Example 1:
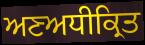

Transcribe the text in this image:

ਅਣਅਧੀਕ੍ਰਿਤ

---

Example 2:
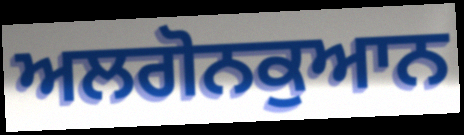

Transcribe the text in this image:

ਅਲਗੋਨਕੁਆਨ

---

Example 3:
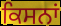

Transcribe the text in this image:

ਕਿਸਨਾਂ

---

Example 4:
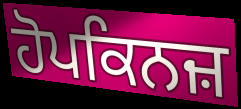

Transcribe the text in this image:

ਹੋਪਕਿਨਜ਼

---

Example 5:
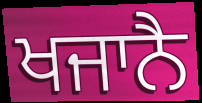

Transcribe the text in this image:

ਖਜਾਨੈ